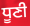
ਧੂਣੀ